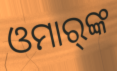
ଓମାର୍‌ଙ୍କ